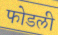
फोडली